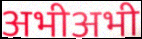
अभीअभी